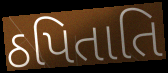
ઠપિતાતિ